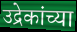
उद्रेकांच्या